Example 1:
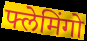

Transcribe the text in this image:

फ्लेमिंगो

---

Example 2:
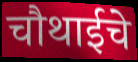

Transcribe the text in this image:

चौथाईचे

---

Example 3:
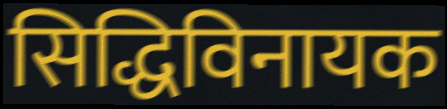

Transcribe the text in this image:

सिद्धिविनायक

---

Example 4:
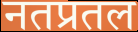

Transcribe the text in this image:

नतप्रतल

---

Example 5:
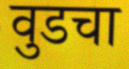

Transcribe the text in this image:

वुडचा